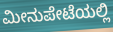
ಮೀನುಪೇಟೆಯಲ್ಲಿ